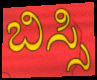
ಬಿಸ್ಸಿ